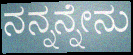
ನನ್ನನ್ನೇನು